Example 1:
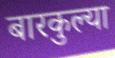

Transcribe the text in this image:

बारकुल्या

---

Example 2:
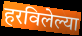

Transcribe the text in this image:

हरविलेल्या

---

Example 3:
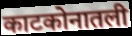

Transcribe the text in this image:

काटकोनातली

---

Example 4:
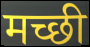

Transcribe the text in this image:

मच्छी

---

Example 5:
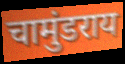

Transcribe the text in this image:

चामुंडराय